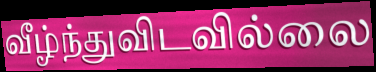
வீழ்ந்துவிடவில்லை